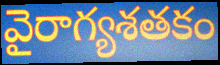
వైరాగ్యశతకం